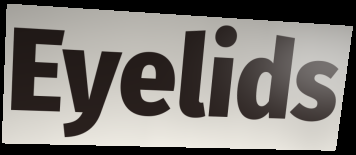
Eyelids